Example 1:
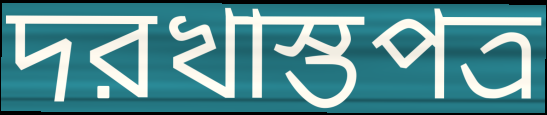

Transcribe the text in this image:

দরখাস্তপত্র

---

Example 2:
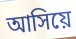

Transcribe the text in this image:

আসিয়ে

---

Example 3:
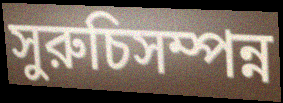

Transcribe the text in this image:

সুরুচিসম্পন্ন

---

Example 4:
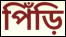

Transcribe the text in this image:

পিঁড়ি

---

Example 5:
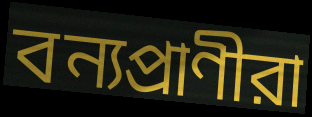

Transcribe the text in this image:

বন্যপ্রাণীরা